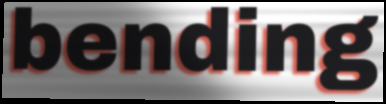
bending